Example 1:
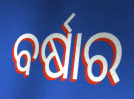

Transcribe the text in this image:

ବର୍ଷାର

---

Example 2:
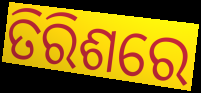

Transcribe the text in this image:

ତିରିଶରେ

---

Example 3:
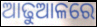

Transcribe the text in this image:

ଆଢୁଆଳରେ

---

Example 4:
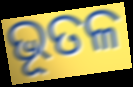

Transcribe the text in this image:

ଭୂତଳ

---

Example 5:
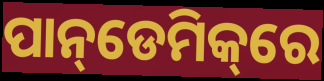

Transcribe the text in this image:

ପାନ୍‌ଡେମିକ୍‌ରେ